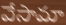
వేసామా